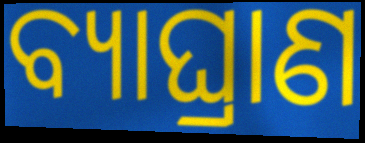
ବ୍ୟାଘ୍ରାଣ